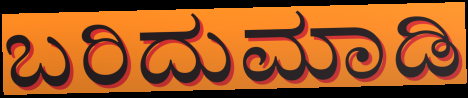
ಬರಿದುಮಾಡಿ